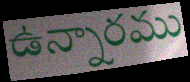
ఉన్నారము